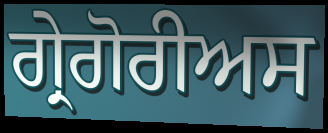
ਗ੍ਰੇਗੋਰੀਅਸ